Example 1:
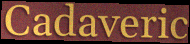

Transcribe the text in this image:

Cadaveric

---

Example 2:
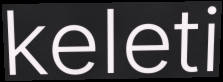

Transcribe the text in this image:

keleti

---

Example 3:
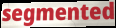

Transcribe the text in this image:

segmented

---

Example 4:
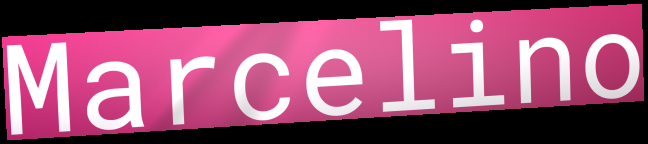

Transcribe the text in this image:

Marcelino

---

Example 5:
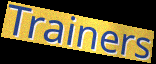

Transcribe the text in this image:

Trainers